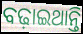
ବଢ଼ାଇଥାନ୍ତି